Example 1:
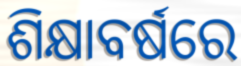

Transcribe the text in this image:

ଶିକ୍ଷାବର୍ଷରେ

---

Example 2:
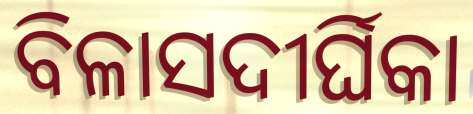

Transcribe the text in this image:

ବିଳାସଦୀର୍ଘିକା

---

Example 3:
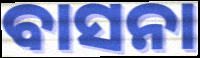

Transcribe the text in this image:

ବାସନା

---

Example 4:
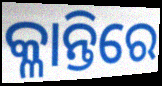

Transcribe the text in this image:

କ୍ଳାନ୍ତିରେ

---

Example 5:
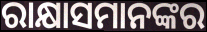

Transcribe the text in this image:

ରାକ୍ଷାସମାନଙ୍କର